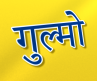
गुल्मो